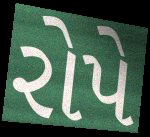
રોપે